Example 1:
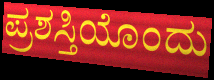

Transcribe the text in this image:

ಪ್ರಶಸ್ತಿಯೊಂದು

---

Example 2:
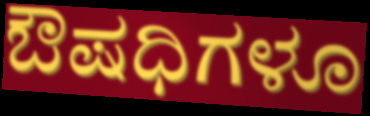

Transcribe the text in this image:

ಔಷಧಿಗಳೂ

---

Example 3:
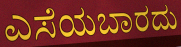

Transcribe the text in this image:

ಎಸೆಯಬಾರದು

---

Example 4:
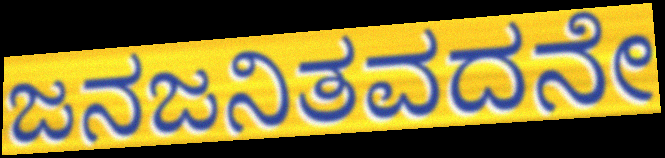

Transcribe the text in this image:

ಜನಜನಿತವದನೇ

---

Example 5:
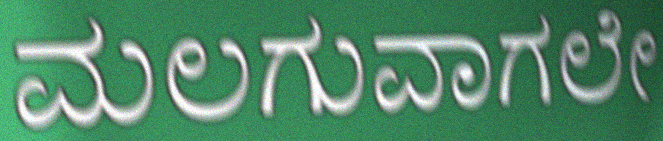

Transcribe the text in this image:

ಮಲಗುವಾಗಲೇ